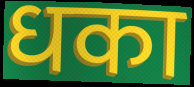
धका